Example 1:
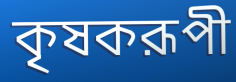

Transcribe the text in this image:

কৃষকরূপী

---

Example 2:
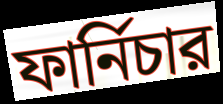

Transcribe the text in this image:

ফার্নিচার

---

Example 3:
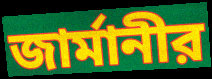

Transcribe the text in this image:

জার্মানীর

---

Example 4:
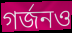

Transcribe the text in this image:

গর্জনও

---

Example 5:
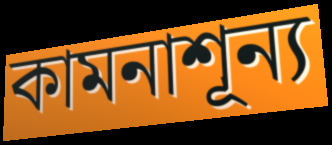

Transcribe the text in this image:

কামনাশূন্য